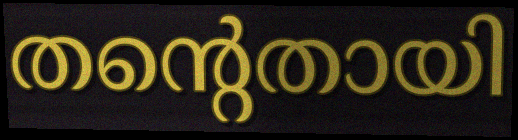
തന്റെതായി